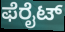
ಫೆರೈಟ್